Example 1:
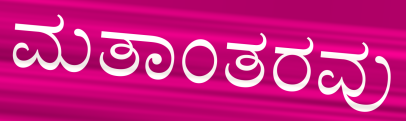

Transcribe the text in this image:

ಮತಾಂತರವು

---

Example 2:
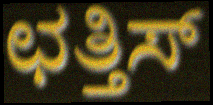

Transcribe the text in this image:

ಛತ್ತಿಸ್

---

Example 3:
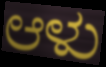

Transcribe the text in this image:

ಆಳು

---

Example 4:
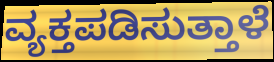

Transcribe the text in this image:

ವ್ಯಕ್ತಪಡಿಸುತ್ತಾಳೆ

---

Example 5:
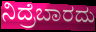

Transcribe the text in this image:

ನಿದ್ರೆಬಾರದು